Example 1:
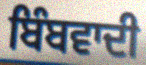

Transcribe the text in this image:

ਬਿੰਬਵਾਦੀ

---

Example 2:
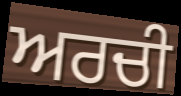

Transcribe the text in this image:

ਅਰਚੀ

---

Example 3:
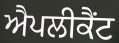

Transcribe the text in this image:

ਐਪਲੀਕੈਂਟ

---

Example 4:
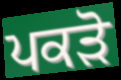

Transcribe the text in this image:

ਪਕੜੋ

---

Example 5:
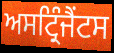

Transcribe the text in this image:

ਅਸਟ੍ਰਿੰਜੈਂਟਸ